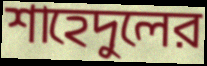
শাহেদুলের